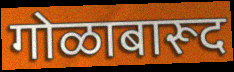
गोळाबारूद